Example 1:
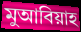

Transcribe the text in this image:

মুআবিয়াহ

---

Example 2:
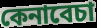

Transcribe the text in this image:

কেনাবেচা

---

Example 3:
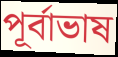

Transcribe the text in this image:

পূর্বাভাষ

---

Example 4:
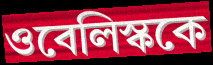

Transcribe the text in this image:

ওবেলিস্ককে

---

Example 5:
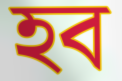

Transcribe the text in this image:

হব